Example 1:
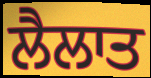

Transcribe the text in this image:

ਲੈਲਾਤ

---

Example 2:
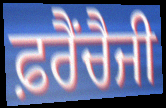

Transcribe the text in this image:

ਫ਼ਰੈਂਚੈਜੀ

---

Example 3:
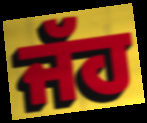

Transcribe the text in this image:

ਜੱਹ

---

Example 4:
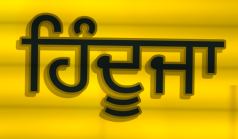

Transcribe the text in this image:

ਹਿੰਦੂਜਾ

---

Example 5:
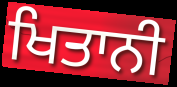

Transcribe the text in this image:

ਖਿਤਾਨੀ